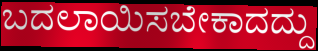
ಬದಲಾಯಿಸಬೇಕಾದದ್ದು